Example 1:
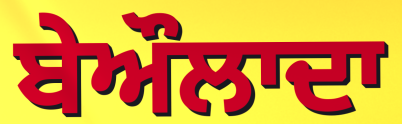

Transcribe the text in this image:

ਬੇਔਲਾਦਾ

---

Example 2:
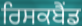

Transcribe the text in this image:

ਰਿਸਕਬੈਂਡ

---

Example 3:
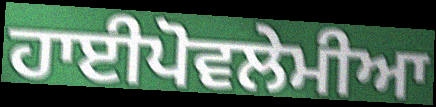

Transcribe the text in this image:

ਹਾਈਪੋਵਲੇਮੀਆ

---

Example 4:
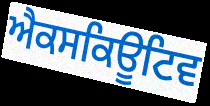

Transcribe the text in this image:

ਐਕਸਕਿਊਟਿਵ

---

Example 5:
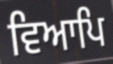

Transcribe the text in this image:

ਵਿਆਪਿ